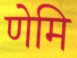
णेमि